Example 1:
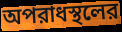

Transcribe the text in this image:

অপরাধস্থলের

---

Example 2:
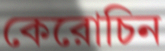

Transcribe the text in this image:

কেরোচিন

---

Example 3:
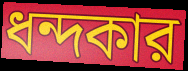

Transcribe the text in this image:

ধন্দকার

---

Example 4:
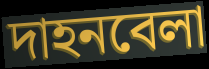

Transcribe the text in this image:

দাহনবেলা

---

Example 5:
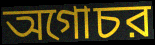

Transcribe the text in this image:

অগোচর